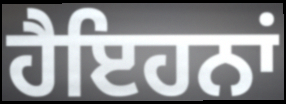
ਹੈਇਹਨਾਂ